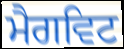
ਮੈਗਵਿਟ